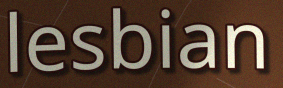
lesbian